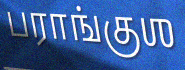
பராங்குஶ